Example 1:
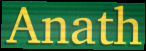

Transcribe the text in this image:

Anath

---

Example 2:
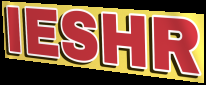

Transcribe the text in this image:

IESHR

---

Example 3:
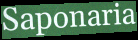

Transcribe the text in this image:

Saponaria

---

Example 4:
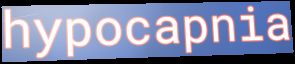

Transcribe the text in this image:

hypocapnia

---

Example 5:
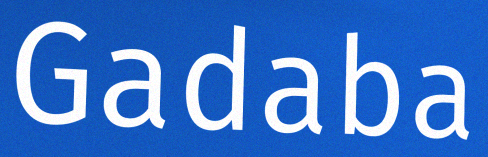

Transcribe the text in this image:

Gadaba